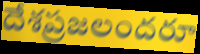
దేశప్రజలందరూ